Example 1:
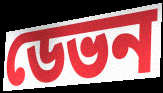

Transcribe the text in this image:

ডেভন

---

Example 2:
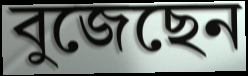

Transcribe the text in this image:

বুজেছেন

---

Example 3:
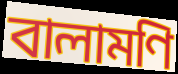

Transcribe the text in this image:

বালামণি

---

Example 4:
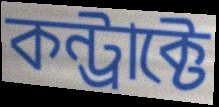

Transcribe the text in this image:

কন্ট্রাক্টে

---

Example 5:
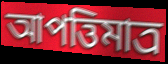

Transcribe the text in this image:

আপত্তিমাত্র